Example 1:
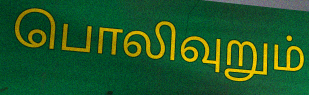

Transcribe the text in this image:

பொலிவுறும்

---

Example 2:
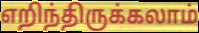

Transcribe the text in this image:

எறிந்திருக்கலாம்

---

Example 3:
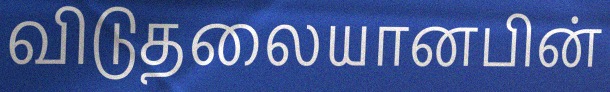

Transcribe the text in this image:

விடுதலையானபின்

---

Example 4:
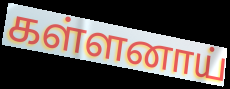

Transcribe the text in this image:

கள்ளனாய்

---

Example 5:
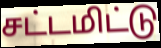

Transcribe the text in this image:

சட்டமிட்டு